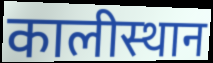
कालीस्थान